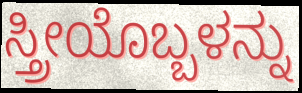
ಸ್ತ್ರೀಯೊಬ್ಬಳನ್ನು